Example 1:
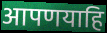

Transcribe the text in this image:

आपणयाहि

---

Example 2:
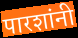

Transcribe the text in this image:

पारशांनी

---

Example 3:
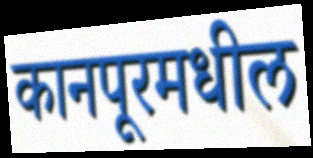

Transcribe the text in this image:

कानपूरमधील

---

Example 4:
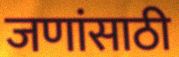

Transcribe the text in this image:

जणांसाठी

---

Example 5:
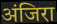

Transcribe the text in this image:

अंजिरा